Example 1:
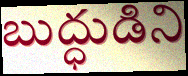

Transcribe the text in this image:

బుద్ధుడిని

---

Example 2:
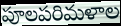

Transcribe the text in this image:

పూలపరిమళాల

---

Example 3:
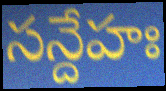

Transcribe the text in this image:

సన్దేహః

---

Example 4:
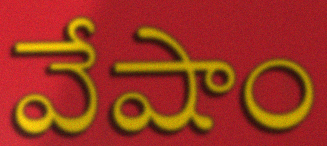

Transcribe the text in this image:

వేషాం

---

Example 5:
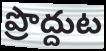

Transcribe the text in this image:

ప్రొద్దుట